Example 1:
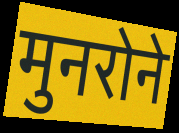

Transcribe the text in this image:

मुनरोने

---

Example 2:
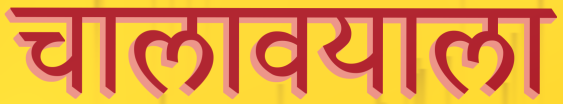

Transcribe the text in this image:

चालावयाला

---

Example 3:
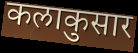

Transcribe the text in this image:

कलाकुसार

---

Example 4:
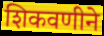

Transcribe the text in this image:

शिकवणीने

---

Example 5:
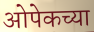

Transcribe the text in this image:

ओपेकच्या